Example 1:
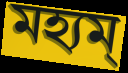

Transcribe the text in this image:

মহ্যম্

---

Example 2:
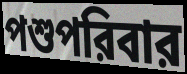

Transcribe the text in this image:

পশুপরিবার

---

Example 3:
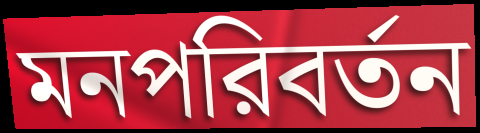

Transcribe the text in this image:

মনপরিবর্তন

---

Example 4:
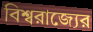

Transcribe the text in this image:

বিশ্বরাজ্যের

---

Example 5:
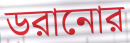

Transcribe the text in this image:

ডরানোর